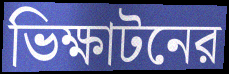
ভিক্ষাটনের